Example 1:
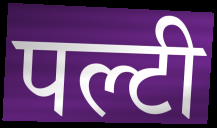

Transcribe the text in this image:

पल्टी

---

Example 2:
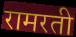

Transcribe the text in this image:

रामरती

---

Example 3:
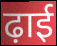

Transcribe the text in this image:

ढ़ाई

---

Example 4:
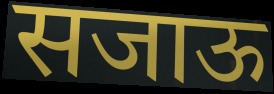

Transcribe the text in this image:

सजाऊ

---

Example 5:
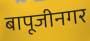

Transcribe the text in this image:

बापूजीनगर